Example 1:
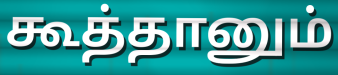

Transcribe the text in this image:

கூத்தானும்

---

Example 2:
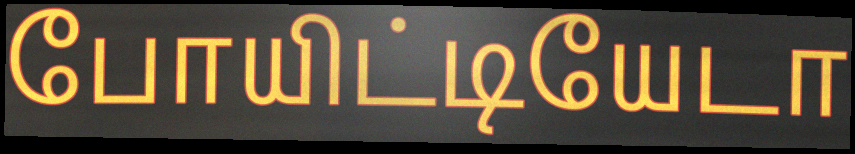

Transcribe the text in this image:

போயிட்டியேடா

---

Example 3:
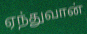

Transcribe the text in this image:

ஏந்துவான்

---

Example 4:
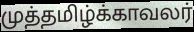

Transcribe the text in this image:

முத்தமிழ்க்காவலர்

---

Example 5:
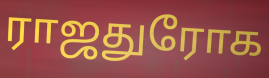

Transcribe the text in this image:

ராஜதுரோக